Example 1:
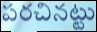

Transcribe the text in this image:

పరచినట్టు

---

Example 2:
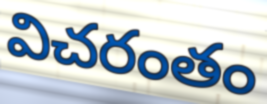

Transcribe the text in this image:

విచరంతం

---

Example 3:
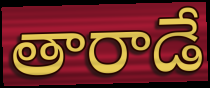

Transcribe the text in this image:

తారాడే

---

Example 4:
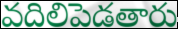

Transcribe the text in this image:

వదిలిపెడతారు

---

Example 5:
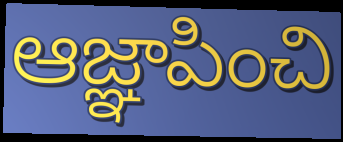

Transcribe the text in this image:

ఆజ్ఞాపించి